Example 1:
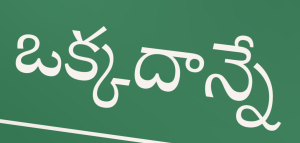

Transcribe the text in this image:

ఒక్కదాన్నే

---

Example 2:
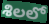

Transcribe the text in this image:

శిలలో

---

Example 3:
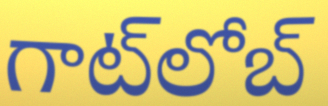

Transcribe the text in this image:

గాట్‍లోబ్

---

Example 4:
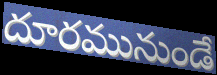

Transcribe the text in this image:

దూరమునుండే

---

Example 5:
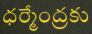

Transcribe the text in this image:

ధర్మేంద్రకు